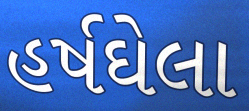
હર્ષઘેલા